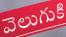
వెలుగుకి